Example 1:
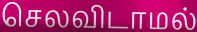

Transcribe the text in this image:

செலவிடாமல்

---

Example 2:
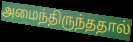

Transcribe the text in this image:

அமைந்திருந்ததால்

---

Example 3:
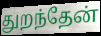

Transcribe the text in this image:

துறந்தேன்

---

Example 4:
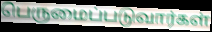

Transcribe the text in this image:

பெருமைப்படுவார்கள்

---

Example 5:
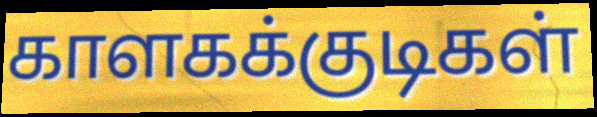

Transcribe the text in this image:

காளகக்குடிகள்